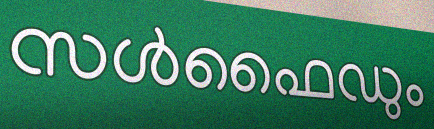
സൾഫൈഡും